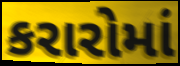
કરારોમાં